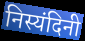
निस्यंदिनी